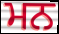
ਮਨ